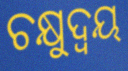
ଚକ୍ଷୁଦ୍ଵୟ